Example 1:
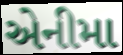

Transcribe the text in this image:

એનીમા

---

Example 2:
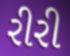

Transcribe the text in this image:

રીરી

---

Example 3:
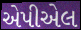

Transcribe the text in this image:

એપીએલ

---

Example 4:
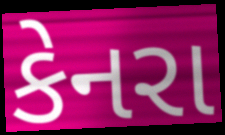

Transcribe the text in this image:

કેનરા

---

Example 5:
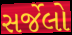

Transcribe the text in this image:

સર્જેલો